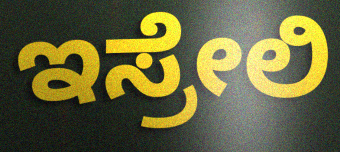
ಇಸ್ರೇಲಿ